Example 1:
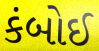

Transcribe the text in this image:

કંબોઈ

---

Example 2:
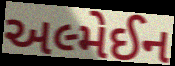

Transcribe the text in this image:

અલ્મેઈન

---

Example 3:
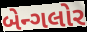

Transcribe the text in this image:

બેન્ગલોર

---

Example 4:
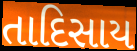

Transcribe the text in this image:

તાદિસાય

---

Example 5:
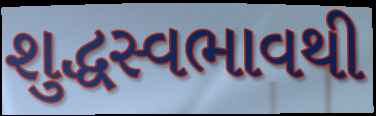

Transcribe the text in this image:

શુદ્ધસ્વભાવથી